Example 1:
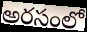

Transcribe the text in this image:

అరసంలో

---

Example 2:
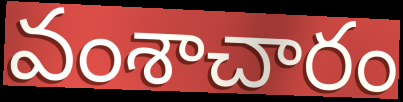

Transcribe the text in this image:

వంశాచారం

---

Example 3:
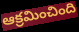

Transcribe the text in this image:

ఆక్రమించింది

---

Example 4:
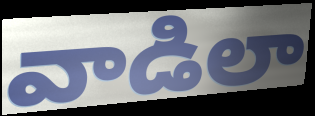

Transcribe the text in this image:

వాడిలా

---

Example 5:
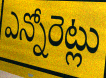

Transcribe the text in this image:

ఎన్నోరెట్లు